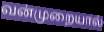
வன்முறையால்